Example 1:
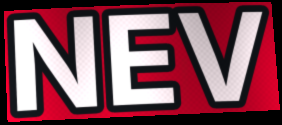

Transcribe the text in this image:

NEV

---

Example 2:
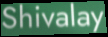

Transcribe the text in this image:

Shivalay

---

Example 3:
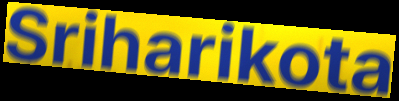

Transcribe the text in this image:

Sriharikota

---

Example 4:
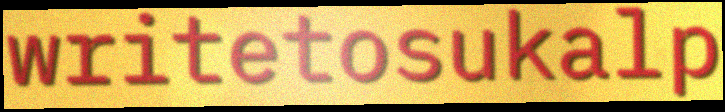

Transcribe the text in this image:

writetosukalp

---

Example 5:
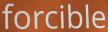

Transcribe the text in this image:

forcible